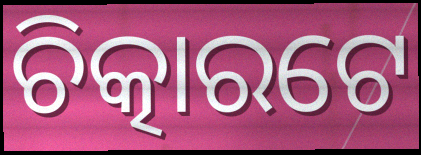
ଚିତ୍କାରଟେ